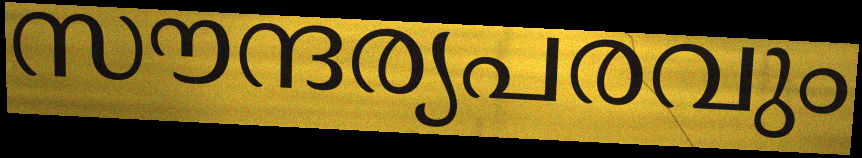
സൗന്ദര്യപരവും